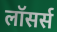
लॉसर्स